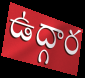
ఉద్గార